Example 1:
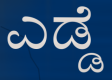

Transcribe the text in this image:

ಎಡ್ಡೆ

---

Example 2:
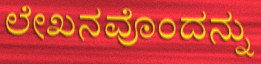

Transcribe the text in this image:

ಲೇಖನವೊಂದನ್ನು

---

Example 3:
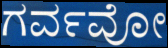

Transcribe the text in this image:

ಗರ್ವವೋ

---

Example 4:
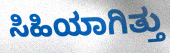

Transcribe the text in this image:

ಸಿಹಿಯಾಗಿತ್ತು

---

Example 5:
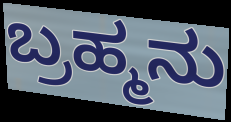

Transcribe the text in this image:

ಬ್ರಹ್ಮನು